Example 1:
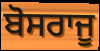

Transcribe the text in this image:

ਬੋਸਰਾਜੂ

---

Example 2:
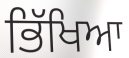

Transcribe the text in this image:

ਭਿੱਖਿਆ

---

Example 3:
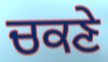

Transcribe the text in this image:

ਚਕਣੇ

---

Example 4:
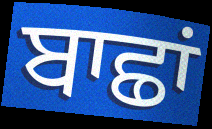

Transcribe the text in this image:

ਬਾਛਾਂ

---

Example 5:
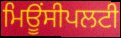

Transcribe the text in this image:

ਮਿਊਂਸੀਪਲਟੀ